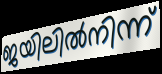
ജയിലിൽനിന്ന്